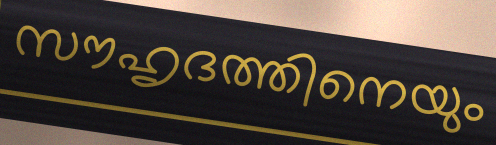
സൗഹൃദത്തിനെയും